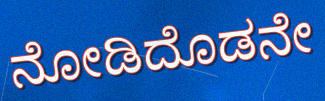
ನೋಡಿದೊಡನೇ